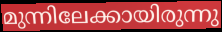
മുന്നിലേക്കായിരുന്നു